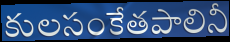
కులసంకేతపాలినీ